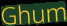
Ghum